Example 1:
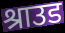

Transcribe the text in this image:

श्राउड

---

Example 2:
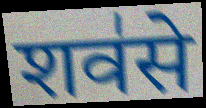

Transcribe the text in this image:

शव॑से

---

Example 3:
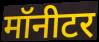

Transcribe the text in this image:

मॉनीटर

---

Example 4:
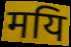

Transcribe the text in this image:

मयि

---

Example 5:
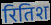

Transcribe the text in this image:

रितिश